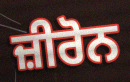
ਜ਼ੀਰੋਨ